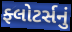
ફ્લોટર્સનું